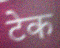
टेक